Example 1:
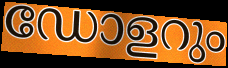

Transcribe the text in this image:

ഡോളറും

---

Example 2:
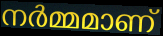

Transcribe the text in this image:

നർമ്മമാണ്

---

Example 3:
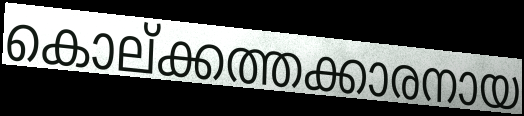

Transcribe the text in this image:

കൊല്ക്കത്തക്കാരനായ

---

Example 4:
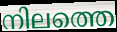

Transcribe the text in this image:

നിലത്തെ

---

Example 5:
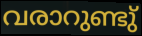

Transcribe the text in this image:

വരാറുണ്ടു്